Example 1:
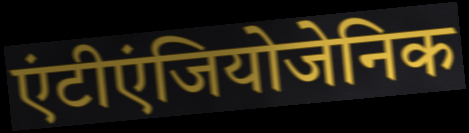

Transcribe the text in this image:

एंटीएंजियोजेनिक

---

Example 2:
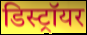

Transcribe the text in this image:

डिस्‍ट्रॉयर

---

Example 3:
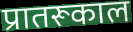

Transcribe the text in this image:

प्रातरूकाल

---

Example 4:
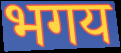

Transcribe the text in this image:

भगय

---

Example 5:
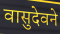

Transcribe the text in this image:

वासुदेवने